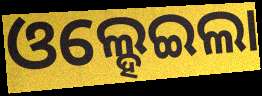
ଓଲ୍ହେଇଲା